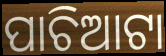
ପାଚିଆଟା